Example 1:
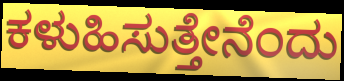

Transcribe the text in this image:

ಕಳುಹಿಸುತ್ತೇನೆಂದು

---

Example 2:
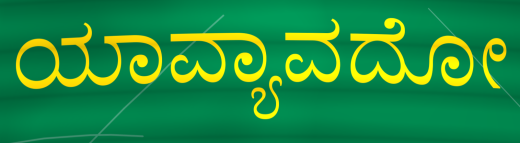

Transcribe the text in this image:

ಯಾವ್ಯಾವದೋ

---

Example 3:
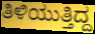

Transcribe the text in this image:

ತಿಳಿಯುತ್ತಿದ್ದ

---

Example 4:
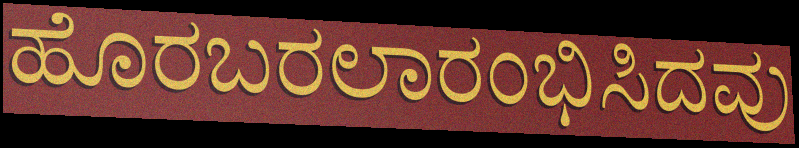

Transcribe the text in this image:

ಹೊರಬರಲಾರಂಭಿಸಿದವು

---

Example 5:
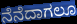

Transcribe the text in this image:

ನೆನೆದಾಗಲೂ